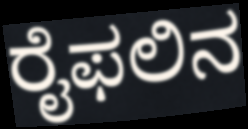
ರೈಫಲಿನ